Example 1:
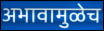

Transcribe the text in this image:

अभावामुळेच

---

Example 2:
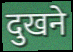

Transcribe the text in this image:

दुखने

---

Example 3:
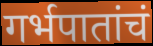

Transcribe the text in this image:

गर्भपातांचं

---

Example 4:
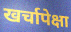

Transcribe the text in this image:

खर्चापेक्षा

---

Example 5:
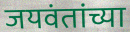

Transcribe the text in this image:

जयवंतांच्या